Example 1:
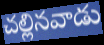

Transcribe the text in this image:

చల్లినవాడు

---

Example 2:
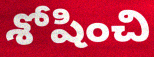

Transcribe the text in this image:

శోషించి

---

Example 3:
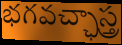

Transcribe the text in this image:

భగవచ్ఛాస్త్ర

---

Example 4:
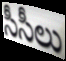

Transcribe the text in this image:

సీసీలు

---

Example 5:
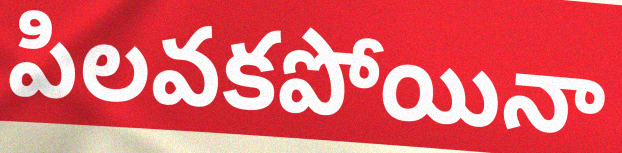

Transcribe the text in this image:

పిలవకపోయినా